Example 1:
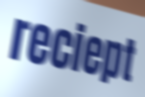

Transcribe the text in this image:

reciept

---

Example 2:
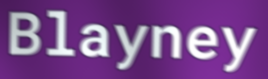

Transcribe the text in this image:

Blayney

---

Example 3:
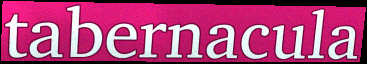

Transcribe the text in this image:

tabernacula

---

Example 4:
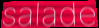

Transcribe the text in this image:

salade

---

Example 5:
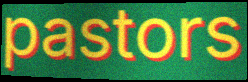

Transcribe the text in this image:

pastors